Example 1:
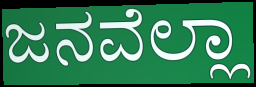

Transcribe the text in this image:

ಜನವೆಲ್ಲಾ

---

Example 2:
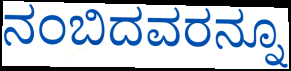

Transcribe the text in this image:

ನಂಬಿದವರನ್ನೂ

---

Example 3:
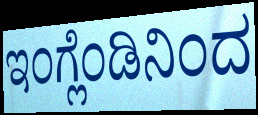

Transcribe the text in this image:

ಇಂಗ್ಲೆಂಡಿನಿಂದ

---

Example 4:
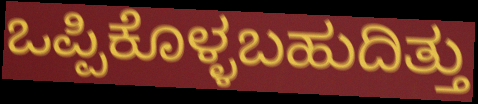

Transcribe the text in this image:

ಒಪ್ಪಿಕೊಳ್ಳಬಹುದಿತ್ತು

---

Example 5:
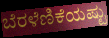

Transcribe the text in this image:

ಬೆರಳೆಣಿಕೆಯಷ್ಟು